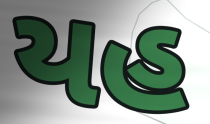
યહ